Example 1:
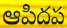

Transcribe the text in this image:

ఆపిదప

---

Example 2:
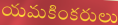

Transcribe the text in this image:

యమకింకరులు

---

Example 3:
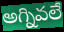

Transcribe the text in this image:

అగ్నివలే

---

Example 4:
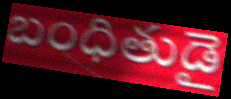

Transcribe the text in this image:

బంధితుడై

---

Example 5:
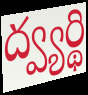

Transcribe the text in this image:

ద్వ్యర్థి